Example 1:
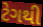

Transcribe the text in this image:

ટેગથી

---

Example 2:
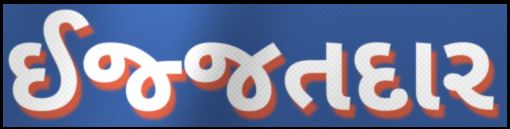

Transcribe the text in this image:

ઈજ્જતદાર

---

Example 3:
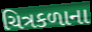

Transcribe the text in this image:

ચિત્રકળાના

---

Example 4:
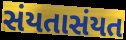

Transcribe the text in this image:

સંયતાસંયત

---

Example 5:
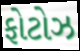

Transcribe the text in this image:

ફોટોઝ